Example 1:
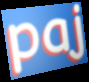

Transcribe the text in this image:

paj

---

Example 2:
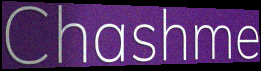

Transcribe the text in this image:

Chashme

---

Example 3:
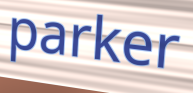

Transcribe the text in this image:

parker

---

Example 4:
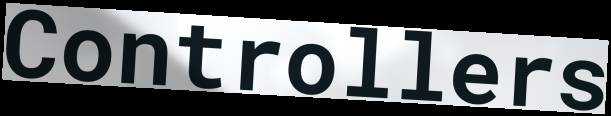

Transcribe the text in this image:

Controllers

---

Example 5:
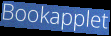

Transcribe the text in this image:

Bookapplet